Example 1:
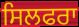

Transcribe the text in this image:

ਸਿਲਫਰਾ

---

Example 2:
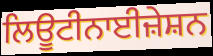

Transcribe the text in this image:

ਲਿਊਟੀਨਾਈਜ਼ੇਸ਼ਨ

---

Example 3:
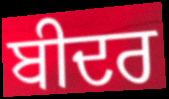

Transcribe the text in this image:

ਬੀਦਰ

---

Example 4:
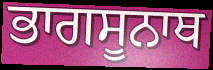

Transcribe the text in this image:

ਭਾਗਸੂਨਾਥ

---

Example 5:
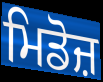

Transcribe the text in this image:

ਮਿਡੋਜ਼